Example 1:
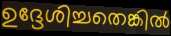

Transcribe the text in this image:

ഉദ്ദേശിച്ചതെങ്കിൽ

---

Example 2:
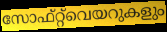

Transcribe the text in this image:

സോഫ്റ്റ്‌വെയറുകളും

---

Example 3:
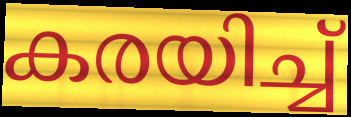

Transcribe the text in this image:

കരയിച്ച്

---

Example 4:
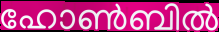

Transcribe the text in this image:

ഹോൺബിൽ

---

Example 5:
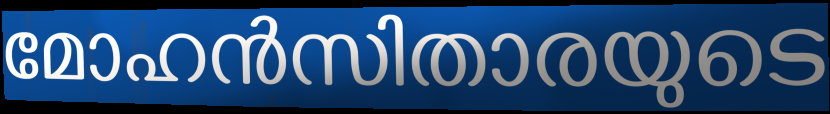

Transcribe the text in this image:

മോഹൻസിതാരയുടെ